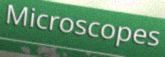
Microscopes